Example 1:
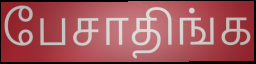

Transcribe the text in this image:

பேசாதிங்க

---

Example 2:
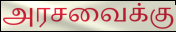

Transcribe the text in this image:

அரசவைக்கு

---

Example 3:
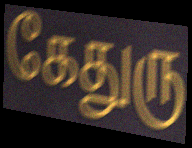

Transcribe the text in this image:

கேதுரு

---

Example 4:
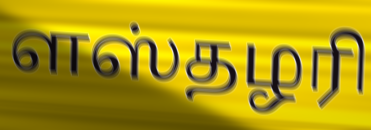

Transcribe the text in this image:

ளஸ்தழரி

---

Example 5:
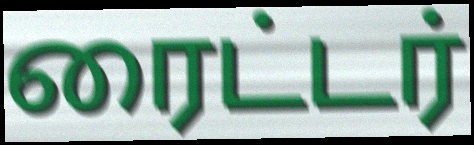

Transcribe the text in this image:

ரைட்டர்